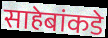
साहेबांकडे